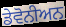
ਡੇਵੋਨੀਅਨ